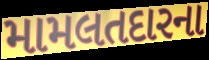
મામલતદારના